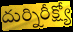
దుర్నిరీక్ష్యో